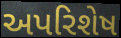
અપરિશેષ